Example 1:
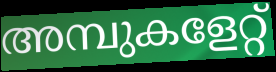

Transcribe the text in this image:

അമ്പുകളേറ്റ്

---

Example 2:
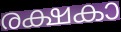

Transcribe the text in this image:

രക്ഷകാ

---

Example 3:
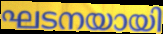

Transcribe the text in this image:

ഘടനയായി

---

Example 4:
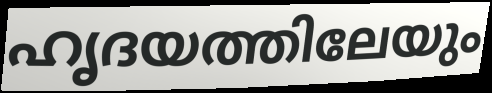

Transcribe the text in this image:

ഹൃദയത്തിലേയും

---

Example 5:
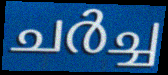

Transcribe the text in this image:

ചർച്ച